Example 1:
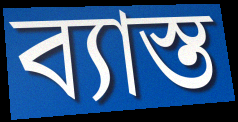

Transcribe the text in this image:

ব্যাস্ত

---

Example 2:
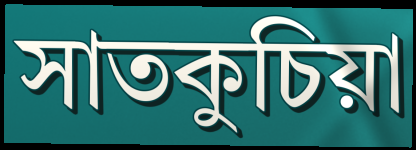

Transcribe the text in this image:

সাতকুচিয়া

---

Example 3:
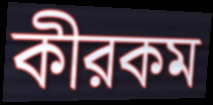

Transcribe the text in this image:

কীরকম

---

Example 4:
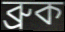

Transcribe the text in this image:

ব্রুক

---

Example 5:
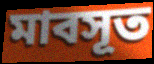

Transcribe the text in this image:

মাবসূত